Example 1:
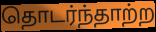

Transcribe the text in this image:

தொடர்ந்தாற்ற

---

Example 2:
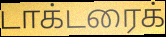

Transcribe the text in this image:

டாக்டரைக்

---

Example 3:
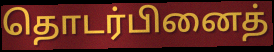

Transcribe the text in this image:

தொடர்பினைத்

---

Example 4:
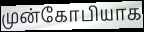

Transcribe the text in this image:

முன்கோபியாக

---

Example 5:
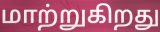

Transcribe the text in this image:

மாற்றுகிறது